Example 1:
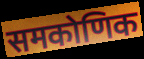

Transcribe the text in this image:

समकोणिक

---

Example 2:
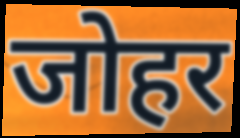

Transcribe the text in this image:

जोहर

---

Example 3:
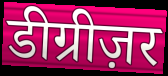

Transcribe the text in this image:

डीग्रीज़र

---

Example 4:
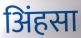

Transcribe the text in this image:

अिंहसा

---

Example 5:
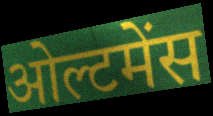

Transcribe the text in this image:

ओल्टमेंस